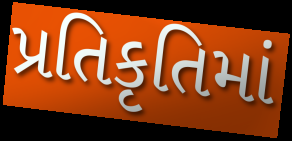
પ્રતિકૃતિમાં